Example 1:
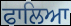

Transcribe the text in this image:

ਫਾਲਿਆ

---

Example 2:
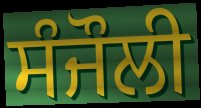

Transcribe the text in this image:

ਸੰਜੌਲੀ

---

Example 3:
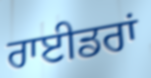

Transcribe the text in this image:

ਰਾਈਡਰਾਂ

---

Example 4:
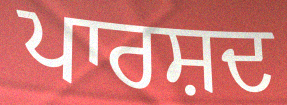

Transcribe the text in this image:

ਪਾਰਸ਼ਦ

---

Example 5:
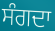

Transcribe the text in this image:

ਸੰਗਦਾ